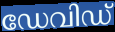
ഡേവിഡ്